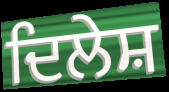
ਦਿਲੇਸ਼